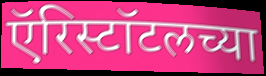
ऍरिस्टॉटलच्या